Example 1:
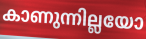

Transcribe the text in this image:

കാണുന്നില്ലയോ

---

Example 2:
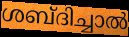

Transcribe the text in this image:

ശബ്ദിച്ചാൽ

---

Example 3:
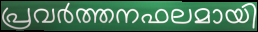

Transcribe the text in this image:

പ്രവർത്തനഫലമായി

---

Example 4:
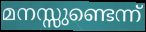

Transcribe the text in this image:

മനസ്സുണ്ടെന്ന്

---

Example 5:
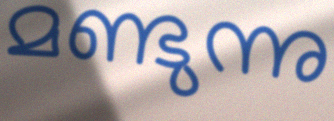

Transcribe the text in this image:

മണ്ടുന്നു